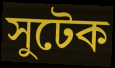
সুটেক